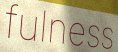
fulness